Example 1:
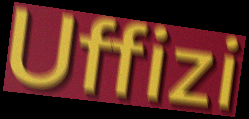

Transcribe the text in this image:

Uffizi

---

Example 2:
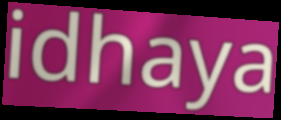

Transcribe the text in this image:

idhaya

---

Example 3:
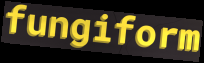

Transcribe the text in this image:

fungiform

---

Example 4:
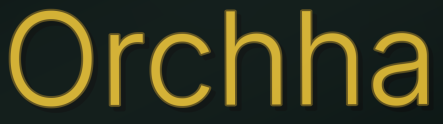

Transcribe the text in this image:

Orchha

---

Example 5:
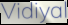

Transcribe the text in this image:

Vidiyal